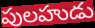
పులహుడు